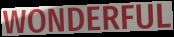
WONDERFUL